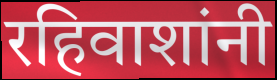
रहिवाशांनी